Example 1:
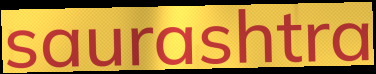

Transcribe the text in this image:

saurashtra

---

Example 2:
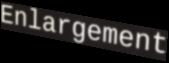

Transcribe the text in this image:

Enlargement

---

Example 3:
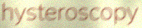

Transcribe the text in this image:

hysteroscopy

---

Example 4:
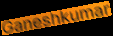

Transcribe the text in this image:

Ganeshkumar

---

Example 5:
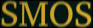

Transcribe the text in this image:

SMOS